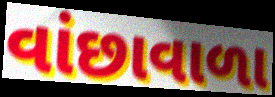
વાંછાવાળા